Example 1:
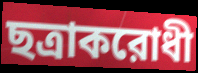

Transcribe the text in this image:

ছত্রাকরোধী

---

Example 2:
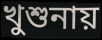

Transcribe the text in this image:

খুশুনায়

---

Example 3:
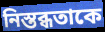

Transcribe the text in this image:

নিস্তব্ধতাকে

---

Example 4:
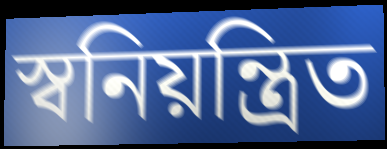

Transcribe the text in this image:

স্বনিয়ন্ত্রিত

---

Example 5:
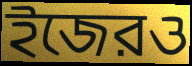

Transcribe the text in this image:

ইজেরও